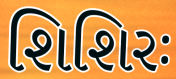
શિશિરઃ